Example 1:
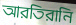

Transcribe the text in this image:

আরতিরানি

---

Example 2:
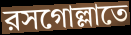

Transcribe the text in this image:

রসগোল্লাতে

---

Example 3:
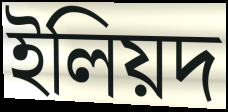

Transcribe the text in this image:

ইলিয়দ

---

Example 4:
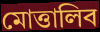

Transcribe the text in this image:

মোত্তালিব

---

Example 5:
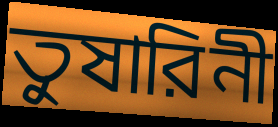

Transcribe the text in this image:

তুষারিনী